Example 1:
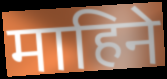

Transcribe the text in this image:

माहिने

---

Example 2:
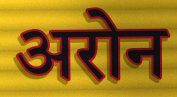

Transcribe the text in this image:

अरोन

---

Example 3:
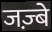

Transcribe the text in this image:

जज़्बे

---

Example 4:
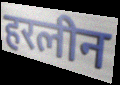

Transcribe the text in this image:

हरलीन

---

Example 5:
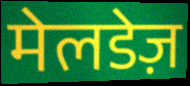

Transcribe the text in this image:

मेलडेज़